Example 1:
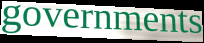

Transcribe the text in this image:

governments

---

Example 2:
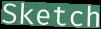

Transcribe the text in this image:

Sketch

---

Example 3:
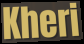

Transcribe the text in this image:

Kheri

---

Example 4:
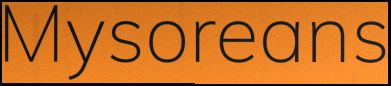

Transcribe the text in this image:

Mysoreans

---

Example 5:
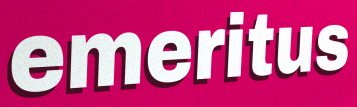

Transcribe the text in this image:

emeritus